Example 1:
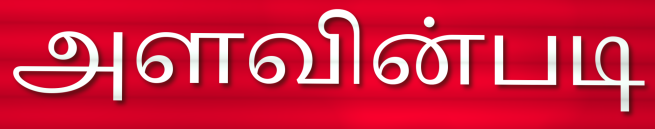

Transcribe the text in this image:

அளவின்படி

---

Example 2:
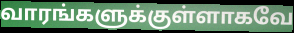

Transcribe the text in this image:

வாரங்களுக்குள்ளாகவே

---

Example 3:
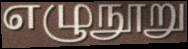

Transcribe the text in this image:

எழுநூறு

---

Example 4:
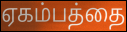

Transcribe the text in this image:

ஏகம்பத்தை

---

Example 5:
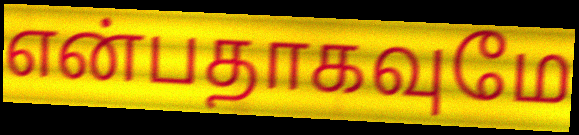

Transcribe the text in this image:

என்பதாகவுமே